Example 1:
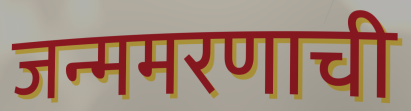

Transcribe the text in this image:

जन्ममरणाची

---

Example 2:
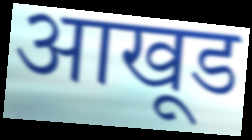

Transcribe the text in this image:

आखूड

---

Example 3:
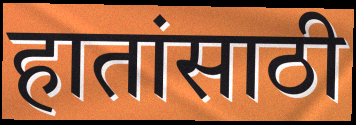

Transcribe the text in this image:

हातांसाठी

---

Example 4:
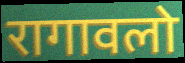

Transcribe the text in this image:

रागावलो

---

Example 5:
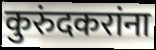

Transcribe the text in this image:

कुरुंदकरांना